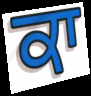
ਕਾ